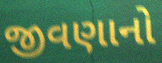
જીવણાનો